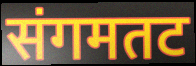
संगमतट